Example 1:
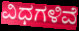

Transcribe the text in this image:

ವಿಧಗಳಿವೆ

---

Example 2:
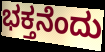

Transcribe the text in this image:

ಭಕ್ತನೆಂದು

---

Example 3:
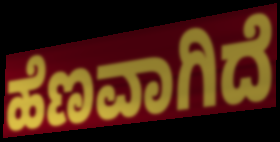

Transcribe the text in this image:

ಹೆಣವಾಗಿದೆ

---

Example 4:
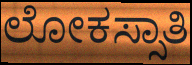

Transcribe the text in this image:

ಲೋಕಸ್ಸಾತಿ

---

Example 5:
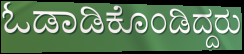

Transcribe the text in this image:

ಓಡಾಡಿಕೊಂಡಿದ್ದರು